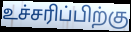
உச்சரிப்பிற்கு